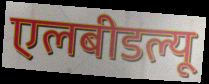
एलबीडल्यू